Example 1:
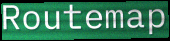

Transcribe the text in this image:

Routemap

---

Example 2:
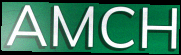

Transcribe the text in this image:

AMCH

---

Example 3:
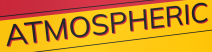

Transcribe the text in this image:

ATMOSPHERIC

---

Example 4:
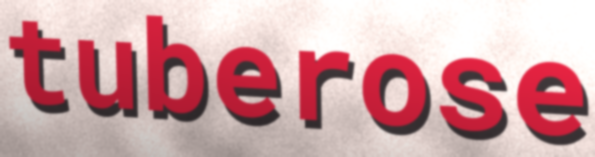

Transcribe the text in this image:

tuberose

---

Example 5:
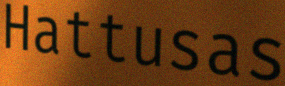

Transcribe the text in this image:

Hattusas